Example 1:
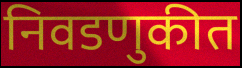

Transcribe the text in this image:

निवडणुकीत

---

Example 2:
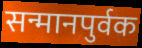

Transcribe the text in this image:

सन्मानपुर्वक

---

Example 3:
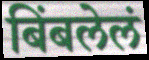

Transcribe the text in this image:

बिंबलेलं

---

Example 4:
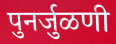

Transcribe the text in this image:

पुनर्जुळणी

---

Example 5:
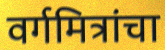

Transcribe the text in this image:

वर्गमित्रांचा